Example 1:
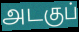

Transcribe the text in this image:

அடகுப்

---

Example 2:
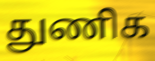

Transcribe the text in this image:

துணிக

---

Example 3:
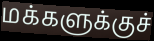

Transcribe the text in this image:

மக்களுக்குச்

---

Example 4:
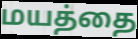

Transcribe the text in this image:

மயத்தை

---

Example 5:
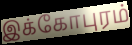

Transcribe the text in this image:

இக்கோபுரம்